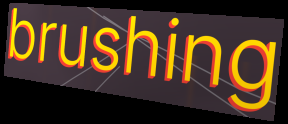
brushing